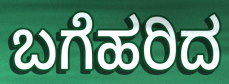
ಬಗೆಹರಿದ